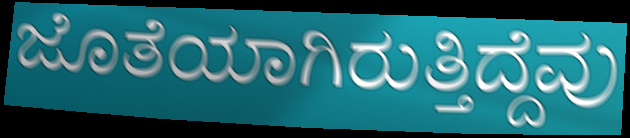
ಜೊತೆಯಾಗಿರುತ್ತಿದ್ದೆವು